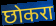
छोकरा